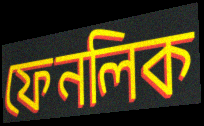
ফেনলিক